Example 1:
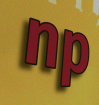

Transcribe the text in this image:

np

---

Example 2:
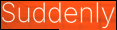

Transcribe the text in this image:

Suddenly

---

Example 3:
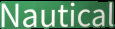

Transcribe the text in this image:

Nautical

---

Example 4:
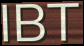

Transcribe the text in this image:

IBT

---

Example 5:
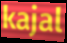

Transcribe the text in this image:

kajal